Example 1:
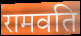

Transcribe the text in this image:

रामवति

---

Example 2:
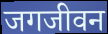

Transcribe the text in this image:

जगजीवन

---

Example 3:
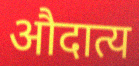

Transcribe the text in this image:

औदात्य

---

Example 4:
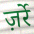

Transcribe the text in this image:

ज़र्रे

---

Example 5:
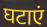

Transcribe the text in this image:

घटाएं